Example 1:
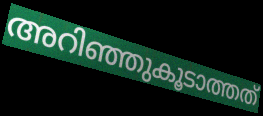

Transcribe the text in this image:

അറിഞ്ഞുകൂടാത്തത്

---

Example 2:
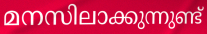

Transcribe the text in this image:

മനസിലാക്കുന്നുണ്ട്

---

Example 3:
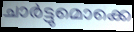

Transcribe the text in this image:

ചാർട്ടുമൊക്കെ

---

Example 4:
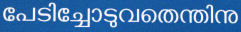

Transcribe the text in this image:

പേടിച്ചോടുവതെന്തിനു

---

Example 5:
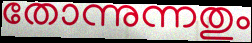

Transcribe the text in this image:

തോന്നുന്നതും